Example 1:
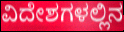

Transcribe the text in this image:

ವಿದೇಶಗಳಲ್ಲಿನ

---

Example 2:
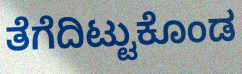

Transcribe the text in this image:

ತೆಗೆದಿಟ್ಟುಕೊಂಡ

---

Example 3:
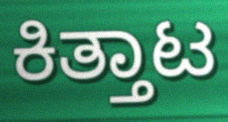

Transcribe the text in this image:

ಕಿತ್ತಾಟ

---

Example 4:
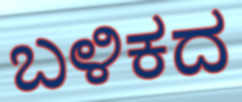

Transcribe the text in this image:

ಬಳಿಕದ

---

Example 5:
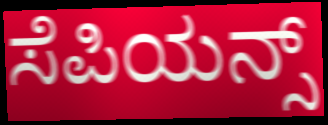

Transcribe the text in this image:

ಸೆಪಿಯನ್ಸ್